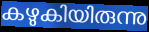
കഴുകിയിരുന്നു